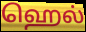
ஹெல்